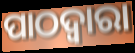
ପାଠଦ୍ଵାରା